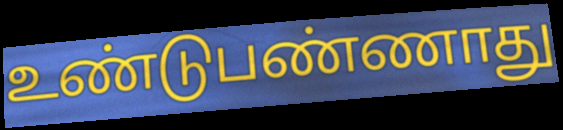
உண்டுபண்ணாது